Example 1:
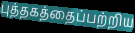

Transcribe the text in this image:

புத்தகத்தைப்பற்றிய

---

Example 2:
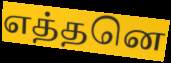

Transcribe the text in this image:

எத்தனெ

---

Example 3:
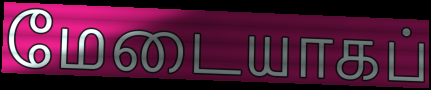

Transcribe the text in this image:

மேடையாகப்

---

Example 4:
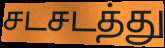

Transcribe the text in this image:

சடசடத்து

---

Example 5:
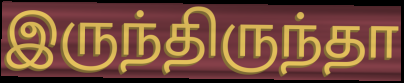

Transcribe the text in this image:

இருந்திருந்தா